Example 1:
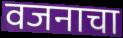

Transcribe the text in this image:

वजनाचा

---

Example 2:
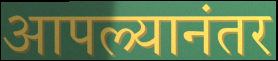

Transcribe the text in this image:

आपल्यानंतर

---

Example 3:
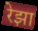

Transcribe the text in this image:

रेझा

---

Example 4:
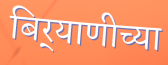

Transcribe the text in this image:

बिर्याणीच्या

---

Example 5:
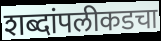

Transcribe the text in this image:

शब्दांपलीकडचा